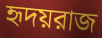
হৃদয়রাজ